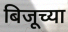
बिजूच्या